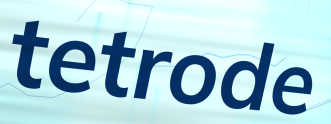
tetrode